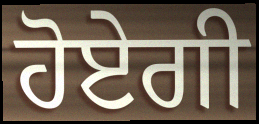
ਹੋਏਗੀ